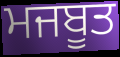
ਮਜਬੂਤ